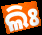
ଲିଃ